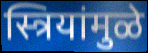
स्त्रियांमुळे